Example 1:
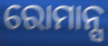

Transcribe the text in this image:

ରୋମାନ୍ସ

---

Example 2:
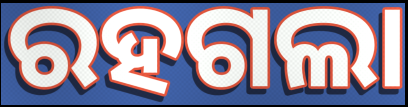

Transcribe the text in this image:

ରହଗଲା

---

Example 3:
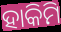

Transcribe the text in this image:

ହାକିମି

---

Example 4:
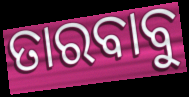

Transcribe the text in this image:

ତାରବାବୁ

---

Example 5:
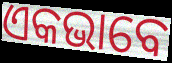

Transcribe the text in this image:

ଏକଭାବେ